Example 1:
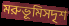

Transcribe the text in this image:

মরুভূমিসদৃশ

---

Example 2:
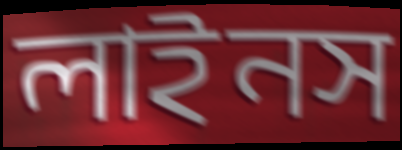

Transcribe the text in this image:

লাইনস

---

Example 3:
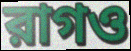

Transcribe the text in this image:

রাগও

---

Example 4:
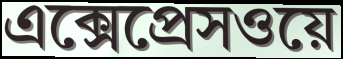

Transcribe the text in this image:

এক্সেপ্রেসওয়ে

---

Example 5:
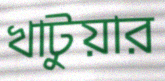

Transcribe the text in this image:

খাটুয়ার